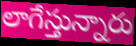
లాగేస్తున్నారు